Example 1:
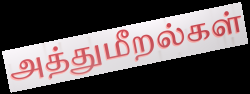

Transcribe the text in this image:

அத்துமீறல்கள்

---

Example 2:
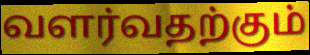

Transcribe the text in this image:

வளர்வதற்கும்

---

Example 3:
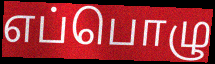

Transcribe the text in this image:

எப்பொழு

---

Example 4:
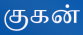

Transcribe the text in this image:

குகன்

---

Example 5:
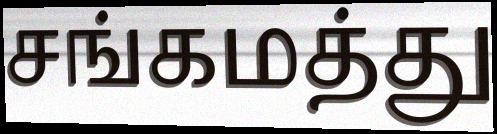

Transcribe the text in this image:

சங்கமத்து